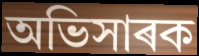
অভিসাৰক